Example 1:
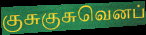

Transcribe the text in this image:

குசுகுசுவெனப்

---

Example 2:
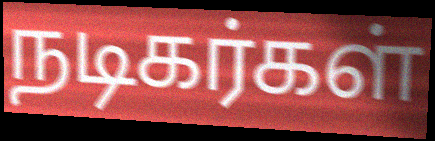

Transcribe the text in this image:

நடிகர்கள்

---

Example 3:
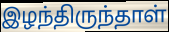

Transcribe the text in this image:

இழந்திருந்தாள்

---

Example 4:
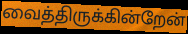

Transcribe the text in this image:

வைத்திருக்கின்றேன்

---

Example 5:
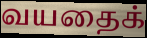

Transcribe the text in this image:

வயதைக்